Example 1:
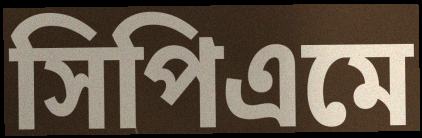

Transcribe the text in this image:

সিপিএমে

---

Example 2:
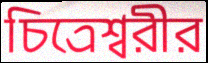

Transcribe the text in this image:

চিত্রেশ্বরীর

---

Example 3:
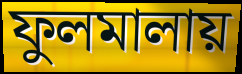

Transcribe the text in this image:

ফুলমালায়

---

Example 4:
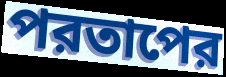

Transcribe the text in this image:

পরতাপের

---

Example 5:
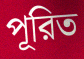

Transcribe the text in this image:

পূরিত